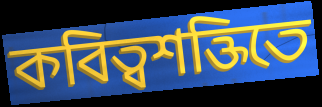
কবিত্বশক্তিতে